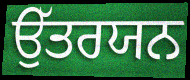
ਉੱਤਰਯਨ